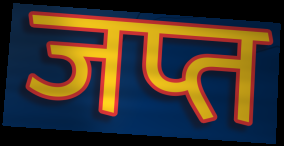
जप्त